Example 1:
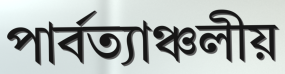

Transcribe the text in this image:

পার্বত্যাঞ্চলীয়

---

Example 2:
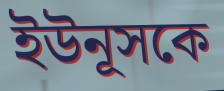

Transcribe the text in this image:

ইউনূসকে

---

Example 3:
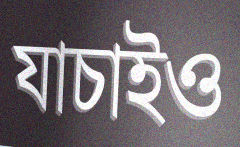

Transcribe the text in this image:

যাচাইও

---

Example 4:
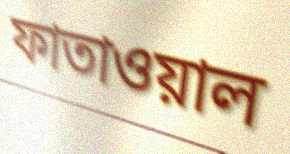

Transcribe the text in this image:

ফাতাওয়াল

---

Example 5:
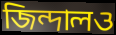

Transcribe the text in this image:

জিন্দালও